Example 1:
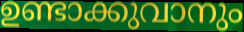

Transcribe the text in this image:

ഉണ്ടാക്കുവാനും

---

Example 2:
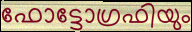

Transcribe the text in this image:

ഫോട്ടോഗ്രഫിയും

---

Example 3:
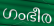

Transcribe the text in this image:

ഗംഭീര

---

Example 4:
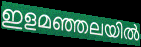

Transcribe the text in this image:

ഇളമഞ്ഞലയിൽ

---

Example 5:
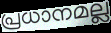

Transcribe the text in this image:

പ്രധാനമല്ല